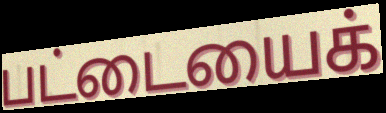
பட்டையைக்